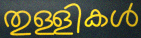
തുള്ളികൾ